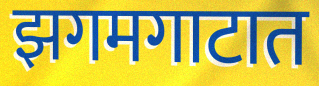
झगमगाटात